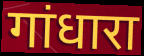
गांधारा